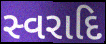
સ્વરાદિ